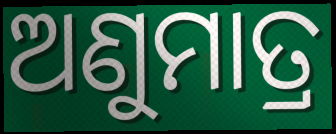
ଅଣୁମାତ୍ର